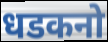
धडकनो